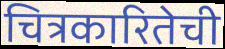
चित्रकारितेची